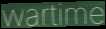
wartime